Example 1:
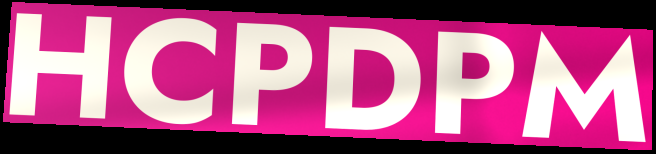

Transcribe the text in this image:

HCPDPM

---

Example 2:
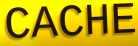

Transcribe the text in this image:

CACHE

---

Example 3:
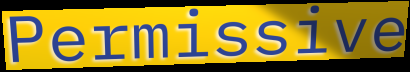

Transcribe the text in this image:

Permissive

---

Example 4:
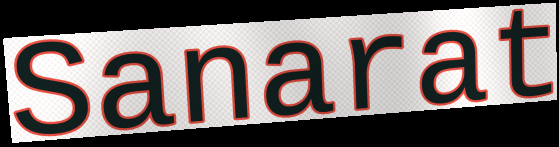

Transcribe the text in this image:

Sanarat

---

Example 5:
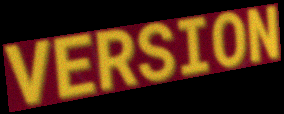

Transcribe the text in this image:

VERSION